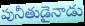
పునీతుడైనాడు